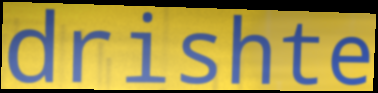
drishte